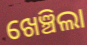
ଖେଞ୍ଚିଲା